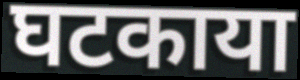
घटकाया